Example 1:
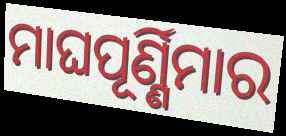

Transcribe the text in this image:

ମାଘପୂର୍ଣ୍ଣିମାର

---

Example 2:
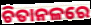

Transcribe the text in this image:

ଚିତାନଳରେ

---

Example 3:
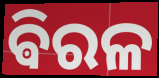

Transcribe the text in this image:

ଵିରଳ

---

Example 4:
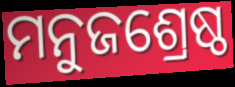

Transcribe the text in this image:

ମନୁଜଶ୍ରେଷ୍ଠ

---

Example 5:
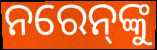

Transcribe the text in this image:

ନରେନ୍‌ଙ୍କୁ